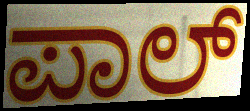
ಪಾಲ್